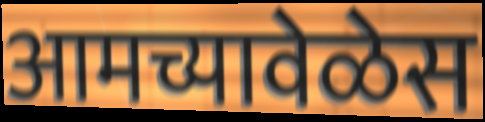
आमच्यावेळेस